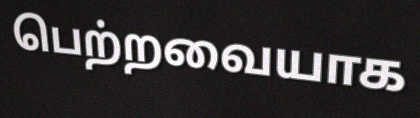
பெற்றவையாக